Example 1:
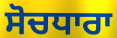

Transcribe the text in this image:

ਸੋਚਧਾਰਾ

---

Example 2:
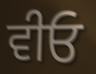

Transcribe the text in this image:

ਵੀਓ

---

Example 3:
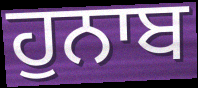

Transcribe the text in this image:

ਹੁਨਾਬ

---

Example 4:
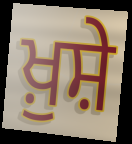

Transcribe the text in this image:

ਖ਼ੁਸ਼ੇ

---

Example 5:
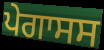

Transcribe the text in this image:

ਪੇਗਾਸਸ